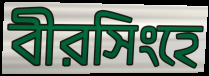
বীরসিংহে